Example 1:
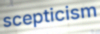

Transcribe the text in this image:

scepticism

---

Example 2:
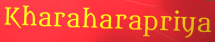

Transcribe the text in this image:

Kharaharapriya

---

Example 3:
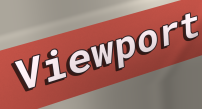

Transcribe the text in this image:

Viewport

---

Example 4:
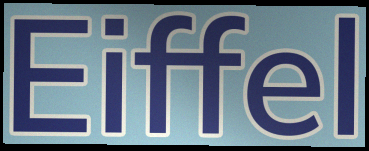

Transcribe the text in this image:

Eiffel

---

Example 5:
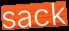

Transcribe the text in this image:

sack